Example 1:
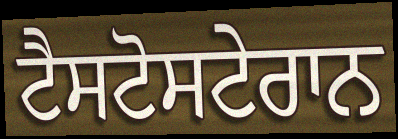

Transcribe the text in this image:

ਟੈਸਟੋਸਟੇਰਾਨ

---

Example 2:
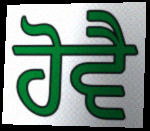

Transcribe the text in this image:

ਹੋਵੈ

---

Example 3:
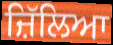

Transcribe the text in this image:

ਜ਼ਿੱਲਿਆ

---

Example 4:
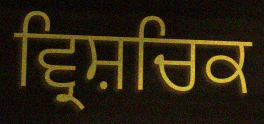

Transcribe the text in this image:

ਵ੍ਰਿਸ਼ਚਿਕ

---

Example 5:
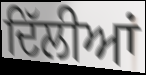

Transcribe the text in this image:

ਦਿੱਲੀਆਂ